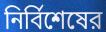
নির্বিশেষের